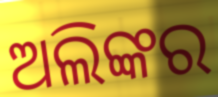
ଅଲିଙ୍କର